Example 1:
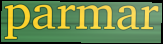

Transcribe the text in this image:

parmar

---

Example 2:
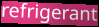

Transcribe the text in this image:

refrigerant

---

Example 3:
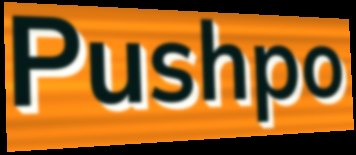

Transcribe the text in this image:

Pushpo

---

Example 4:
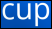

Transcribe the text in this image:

cup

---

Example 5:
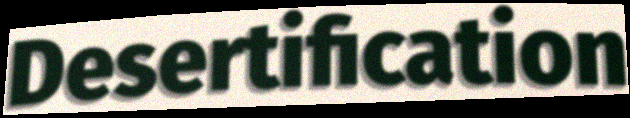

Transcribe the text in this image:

Desertification